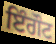
ਇੰਗੌਟ